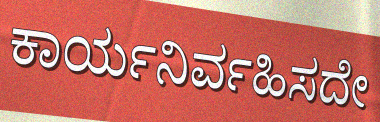
ಕಾರ್ಯನಿರ್ವಹಿಸದೇ